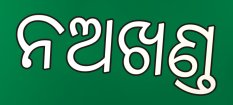
ନଅଖଣ୍ଡ